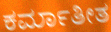
ಕರ್ಮಾತೀತ